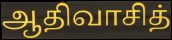
ஆதிவாசித்